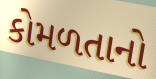
કોમળતાનો